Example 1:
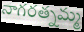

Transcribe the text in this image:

నాగరత్నమ్మ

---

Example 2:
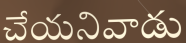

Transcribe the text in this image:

చేయనివాడు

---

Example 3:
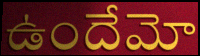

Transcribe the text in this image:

ఉందేమో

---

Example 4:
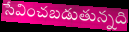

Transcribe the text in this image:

సేవించబడుతున్నది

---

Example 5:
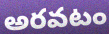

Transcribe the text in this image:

అరవటం